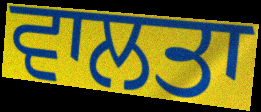
ਵਾਲਤਾ